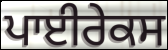
ਪਾਈਰੇਕਸ